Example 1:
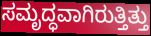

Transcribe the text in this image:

ಸಮೃದ್ಧವಾಗಿರುತ್ತಿತ್ತು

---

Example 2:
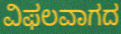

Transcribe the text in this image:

ವಿಫಲವಾಗದ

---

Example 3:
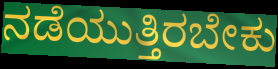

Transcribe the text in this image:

ನಡೆಯುತ್ತಿರಬೇಕು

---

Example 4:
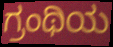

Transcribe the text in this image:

ಗ್ರಂಥಿಯ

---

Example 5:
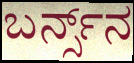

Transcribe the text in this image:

ಬರ್ನ್ಸ್‌ನ